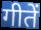
गीतें